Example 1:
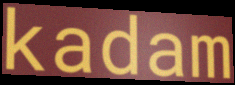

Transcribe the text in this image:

kadam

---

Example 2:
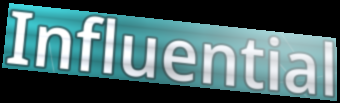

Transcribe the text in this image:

Influential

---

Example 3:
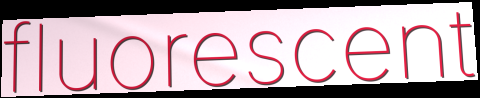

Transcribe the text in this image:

fluorescent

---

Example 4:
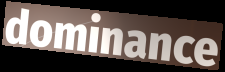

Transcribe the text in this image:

dominance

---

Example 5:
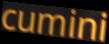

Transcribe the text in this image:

cumini